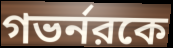
গভর্নরকে